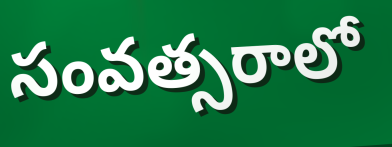
సంవత్సరాలో